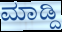
ಮಾಡ್ದಿ